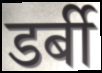
डर्बी